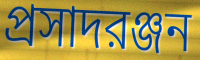
প্রসাদরঞ্জন